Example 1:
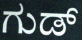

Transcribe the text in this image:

ಗುಡ್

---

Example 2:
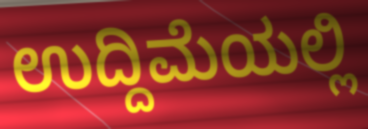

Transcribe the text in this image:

ಉದ್ದಿಮೆಯಲ್ಲಿ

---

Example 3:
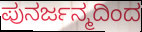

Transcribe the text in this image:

ಪುನರ್ಜನ್ಮದಿಂದ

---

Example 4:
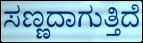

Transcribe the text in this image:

ಸಣ್ಣದಾಗುತ್ತಿದೆ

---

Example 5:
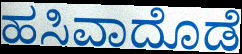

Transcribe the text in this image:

ಹಸಿವಾದೊಡೆ